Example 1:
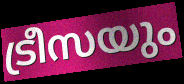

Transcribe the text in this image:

ട്രീസയും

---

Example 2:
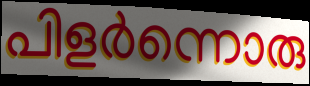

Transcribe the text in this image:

പിളർന്നൊരു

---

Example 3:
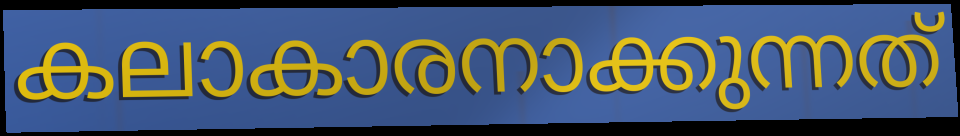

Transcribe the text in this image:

കലാകാരനാക്കുന്നത്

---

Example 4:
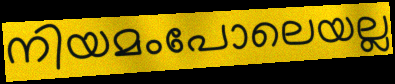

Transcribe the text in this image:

നിയമംപോലെയല്ല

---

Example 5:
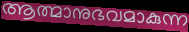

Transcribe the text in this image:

ആത്മാനുഭവമാകുന്ന